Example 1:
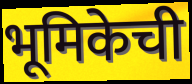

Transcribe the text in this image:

भूमिकेची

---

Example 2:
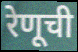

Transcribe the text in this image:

रेणूची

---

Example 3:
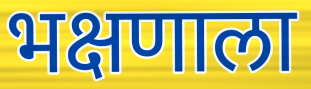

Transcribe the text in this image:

भक्षणाला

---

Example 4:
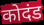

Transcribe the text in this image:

कोदंड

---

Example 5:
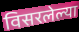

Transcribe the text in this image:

विसरलेल्या